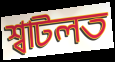
শ্বাটলত